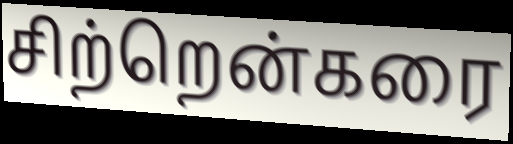
சிற்றென்கரை